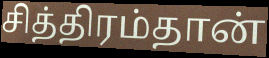
சித்திரம்தான்